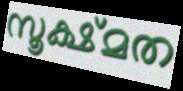
സൂക്ഷ്മത